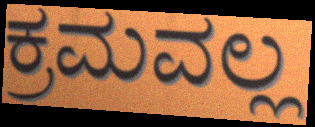
ಕ್ರಮವಲ್ಲ